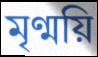
মৃণ্ময়ি